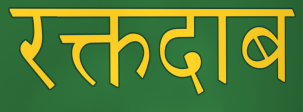
रक्तदाब